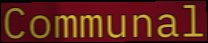
Communal